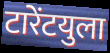
टारेंटयुला